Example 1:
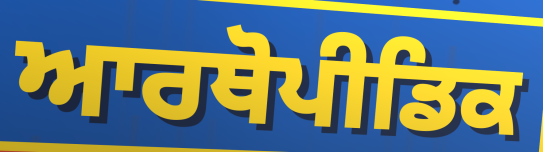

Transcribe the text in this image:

ਆਰਥੋਪੀਡਿਕ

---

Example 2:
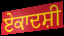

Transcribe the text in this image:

ਏਕਾਦਸ਼ੀ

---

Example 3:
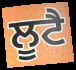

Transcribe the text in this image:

ਲੂਟੈ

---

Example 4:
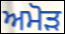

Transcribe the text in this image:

ਅਮੋੜ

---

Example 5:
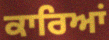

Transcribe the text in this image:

ਕਾਰਿਆਂ